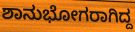
ಶಾನುಭೋಗರಾಗಿದ್ದ